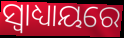
ସ୍ଵାଧ୍ୟାୟରେ